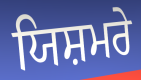
ਯਿਸ਼ਮਰੇ